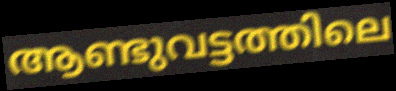
ആണ്ടുവട്ടത്തിലെ